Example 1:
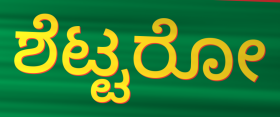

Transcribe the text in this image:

ಶೆಟ್ಟರೋ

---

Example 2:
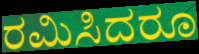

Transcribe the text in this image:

ರಮಿಸಿದರೂ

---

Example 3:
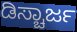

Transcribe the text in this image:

ಡಿಸ್ಚಾರ್ಜ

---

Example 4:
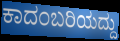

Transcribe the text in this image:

ಕಾದಂಬರಿಯದ್ದು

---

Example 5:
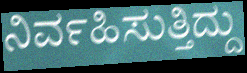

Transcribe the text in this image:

ನಿರ್ವಹಿಸುತ್ತಿದ್ದು